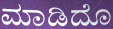
ಮಾಡಿದೊ